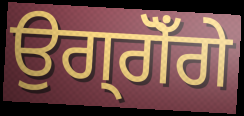
ਉਗ੍ਗੋਁਗੇ